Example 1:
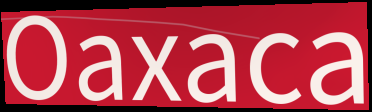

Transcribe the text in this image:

Oaxaca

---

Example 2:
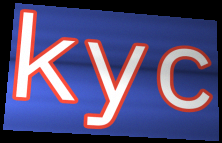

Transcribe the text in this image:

kyc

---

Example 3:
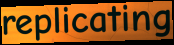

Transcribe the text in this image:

replicating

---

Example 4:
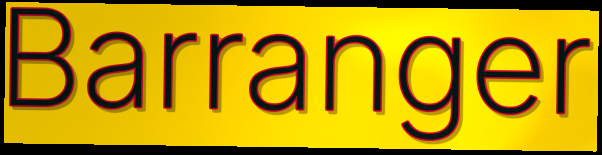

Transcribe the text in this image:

Barranger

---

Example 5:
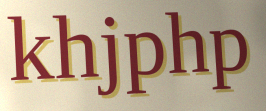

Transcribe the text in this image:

khjphp